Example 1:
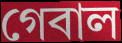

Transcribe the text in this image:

গেবাল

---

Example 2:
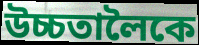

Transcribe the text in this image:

উচ্চতালৈকে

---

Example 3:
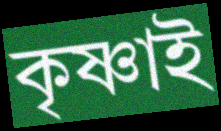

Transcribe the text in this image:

কৃষ্ণাই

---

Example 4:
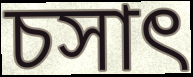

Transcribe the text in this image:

চসাৎ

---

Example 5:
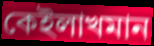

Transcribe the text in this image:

কেইলাখমান